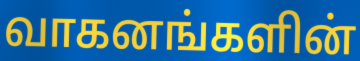
வாகனங்களின்